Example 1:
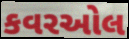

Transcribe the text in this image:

કવરઓલ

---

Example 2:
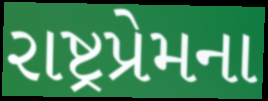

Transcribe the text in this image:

રાષ્ટ્રપ્રેમના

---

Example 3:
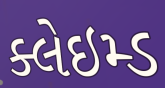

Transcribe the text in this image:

ક્લેઇમ્ડ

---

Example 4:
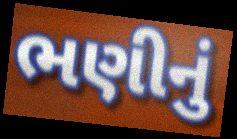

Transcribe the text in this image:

ભણીનું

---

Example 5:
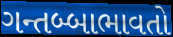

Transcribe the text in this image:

ગન્તબ્બાભાવતો